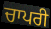
ਚਾਪਰੀ